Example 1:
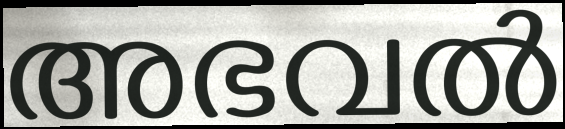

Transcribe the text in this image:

അഭവൽ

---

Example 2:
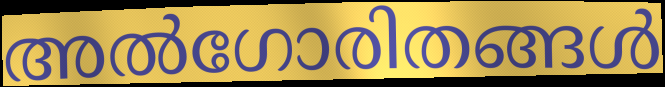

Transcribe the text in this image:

അൽഗോരിതങ്ങൾ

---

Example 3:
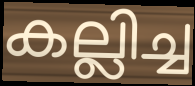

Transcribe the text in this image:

കല്ലിച്ച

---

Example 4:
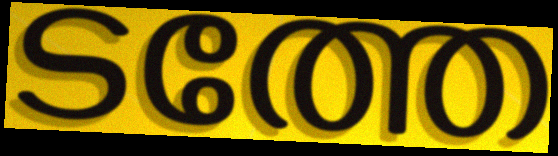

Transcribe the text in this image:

ടത്തേ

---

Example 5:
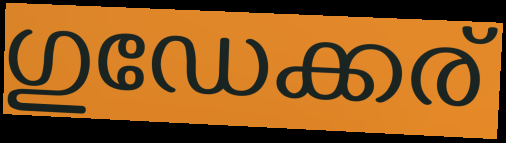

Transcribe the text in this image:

ഗുഡേക്കര്